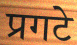
प्रगटे